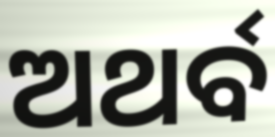
ଅଥର୍ବ